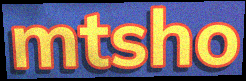
mtsho